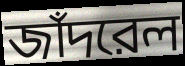
জাঁদরেল